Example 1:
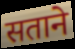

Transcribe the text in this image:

सताने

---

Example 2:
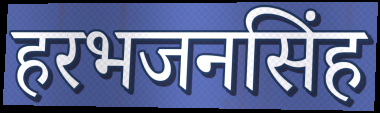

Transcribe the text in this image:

हरभजनसिंह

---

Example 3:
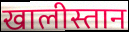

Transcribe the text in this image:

खालीस्तान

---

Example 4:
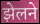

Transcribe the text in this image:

झेलने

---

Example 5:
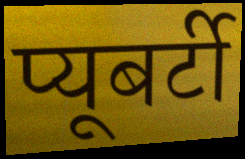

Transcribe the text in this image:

प्यूबर्टी